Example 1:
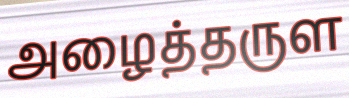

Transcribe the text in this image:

அழைத்தருள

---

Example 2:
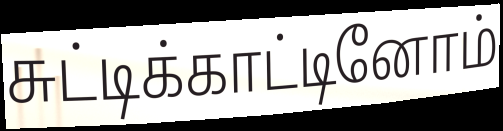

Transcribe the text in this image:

சுட்டிக்காட்டினோம்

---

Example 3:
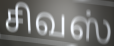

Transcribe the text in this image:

சிவஸ்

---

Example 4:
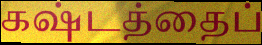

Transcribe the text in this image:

கஷ்டத்தைப்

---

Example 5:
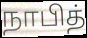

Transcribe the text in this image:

நாபித்